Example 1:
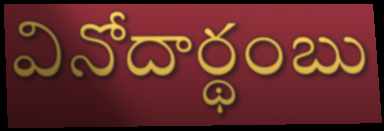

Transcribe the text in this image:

వినోదార్థంబు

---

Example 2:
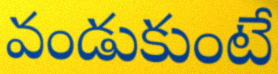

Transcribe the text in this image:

వండుకుంటే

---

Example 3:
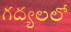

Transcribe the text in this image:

గద్యలలో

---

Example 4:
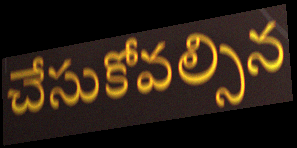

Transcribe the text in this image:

చేసుకోవల్సిన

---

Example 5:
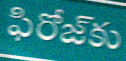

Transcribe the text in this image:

ఫిరోజ్‌కు